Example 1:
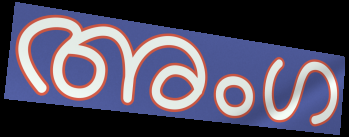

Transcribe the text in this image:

അംഗ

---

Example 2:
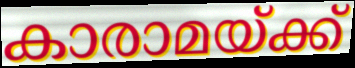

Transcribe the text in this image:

കാരാമയ്ക്ക്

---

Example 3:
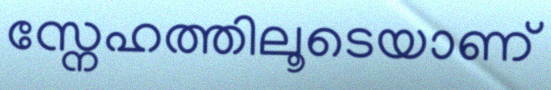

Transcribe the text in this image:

സ്നേഹത്തിലൂടെയാണ്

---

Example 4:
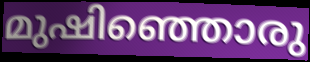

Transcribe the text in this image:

മുഷിഞ്ഞൊരു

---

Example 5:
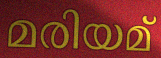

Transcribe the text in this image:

മരിയമ്